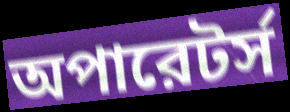
অপারেটর্স